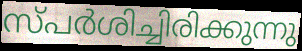
സ്പർശിച്ചിരിക്കുന്നു